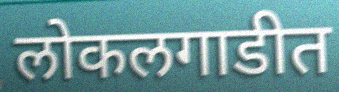
लोकलगाडीत